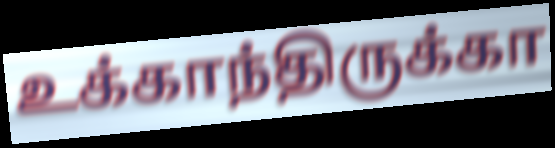
உக்காந்திருக்கா